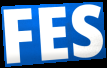
FES